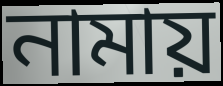
নামায়